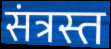
संत्रस्त